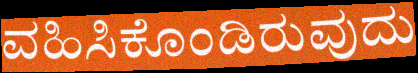
ವಹಿಸಿಕೊಂಡಿರುವುದು